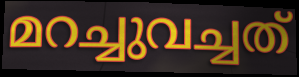
മറച്ചുവച്ചത്